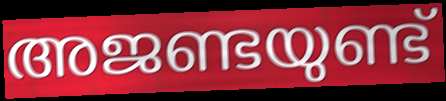
അജണ്ടയുണ്ട്